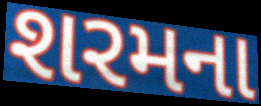
શરમના